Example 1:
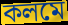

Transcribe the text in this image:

কলমে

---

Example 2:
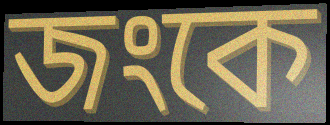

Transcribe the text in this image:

জংকে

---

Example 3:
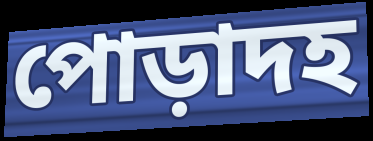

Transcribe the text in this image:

পোড়াদহ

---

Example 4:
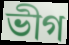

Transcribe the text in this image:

ভীগ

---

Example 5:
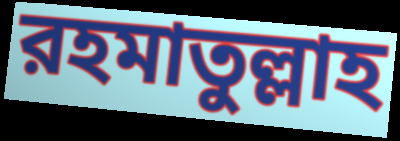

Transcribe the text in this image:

রহমাতুল্লাহ